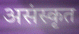
असंस्कृत